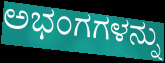
ಅಭಂಗಗಳನ್ನು